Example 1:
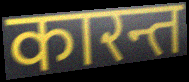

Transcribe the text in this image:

कारन्त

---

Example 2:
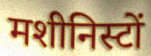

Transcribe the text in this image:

मशीनिस्टों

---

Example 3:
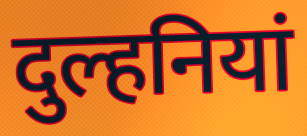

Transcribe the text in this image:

दुल्हनियां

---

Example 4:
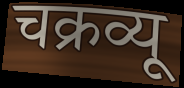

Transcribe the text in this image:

चक्रव्यू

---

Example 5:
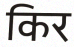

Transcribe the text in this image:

किर